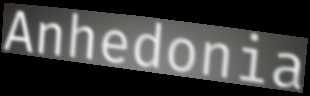
Anhedonia